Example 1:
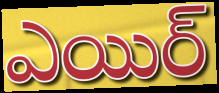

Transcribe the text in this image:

ఎయిర్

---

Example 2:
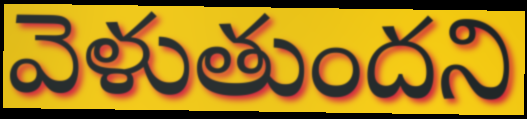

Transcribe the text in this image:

వెళుతుందని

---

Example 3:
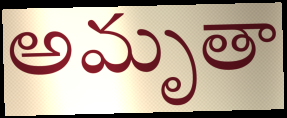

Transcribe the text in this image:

అమృతా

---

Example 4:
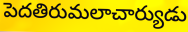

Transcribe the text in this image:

పెదతిరుమలాచార్యుడు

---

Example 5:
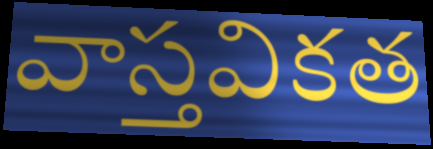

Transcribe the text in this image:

వాస్తవికత